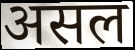
असल